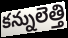
కన్నులెత్తి